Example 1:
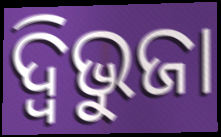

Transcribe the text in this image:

ଦ୍ଵିଭୁଜା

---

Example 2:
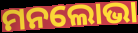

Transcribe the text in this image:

ମନଲୋଭା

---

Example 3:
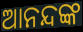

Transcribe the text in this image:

ଆନନ୍ଦଙ୍କ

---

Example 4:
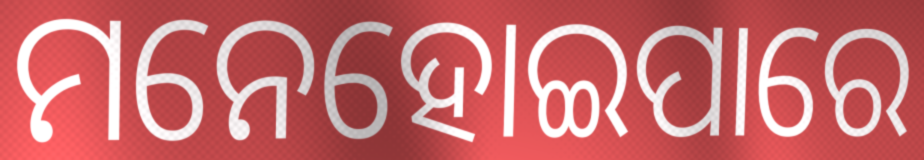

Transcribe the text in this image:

ମନେହୋଇପାରେ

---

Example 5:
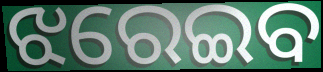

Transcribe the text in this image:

ଝରେଇବ